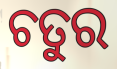
ଚତୁର